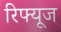
रिफ्यूज